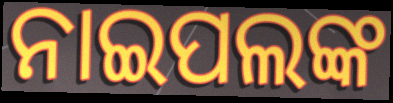
ନାଇପଲଙ୍କ